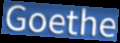
Goethe